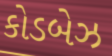
કોડબેઝ